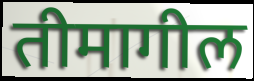
तीमागील